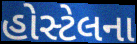
હોસ્ટેલના